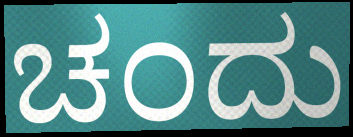
ಚಂದು